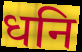
धनि